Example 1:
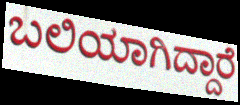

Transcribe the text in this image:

ಬಲಿಯಾಗಿದ್ದಾರೆ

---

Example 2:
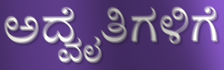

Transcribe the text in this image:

ಅದ್ವೈತಿಗಳಿಗೆ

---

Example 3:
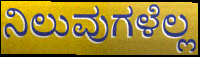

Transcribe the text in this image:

ನಿಲುವುಗಳೆಲ್ಲ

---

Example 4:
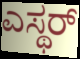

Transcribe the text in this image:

ಎಸ್ಥರ್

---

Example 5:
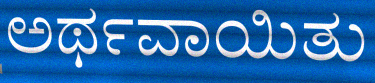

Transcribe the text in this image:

ಅರ್ಥವಾಯಿತು